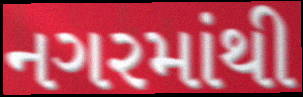
નગરમાંથી